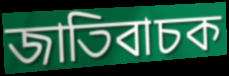
জাতিবাচক